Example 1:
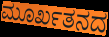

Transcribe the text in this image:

ಮೂರ್ಖತನದ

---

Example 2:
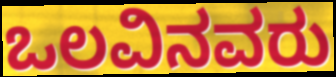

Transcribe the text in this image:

ಒಲವಿನವರು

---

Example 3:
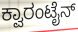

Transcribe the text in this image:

ಕ್ವಾರಂಟೈನ್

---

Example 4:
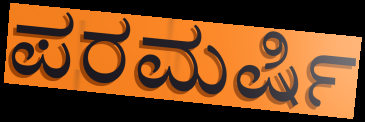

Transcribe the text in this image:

ಪರಮರ್ಷಿ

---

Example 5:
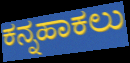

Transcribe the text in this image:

ಕನ್ನಹಾಕಲು